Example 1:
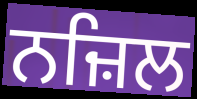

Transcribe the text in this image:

ਨਜ਼ਿਲ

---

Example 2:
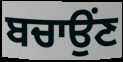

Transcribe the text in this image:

ਬਚਾਉਂਣ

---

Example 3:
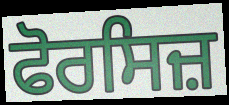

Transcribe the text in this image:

ਫੋਰਸਿਜ਼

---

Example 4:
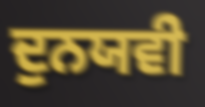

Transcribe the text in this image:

ਦੁਨਯਵੀ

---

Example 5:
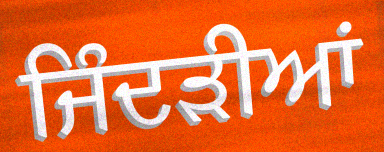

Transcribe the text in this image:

ਜਿੰਦੜੀਆਂ